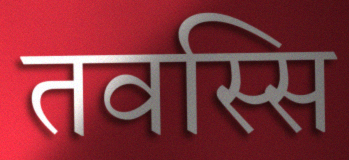
तवस्सि